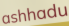
ashhadu